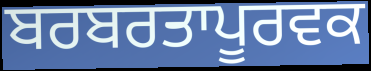
ਬਰਬਰਤਾਪੂਰਵਕ